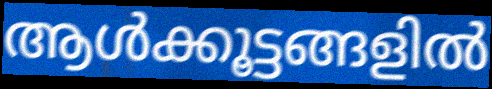
ആൾക്കൂട്ടങ്ങളിൽ